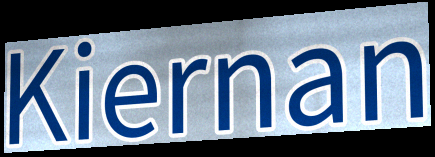
Kiernan